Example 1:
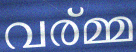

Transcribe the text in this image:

വര്മ്മ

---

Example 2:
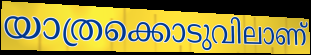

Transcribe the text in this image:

യാത്രക്കൊടുവിലാണ്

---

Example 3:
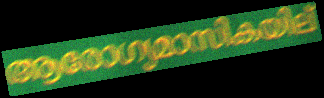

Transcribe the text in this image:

ആരോഗ്യമാസികയില്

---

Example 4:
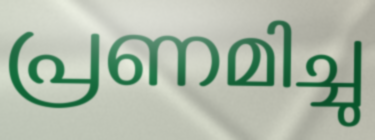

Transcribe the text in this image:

പ്രണമിച്ചു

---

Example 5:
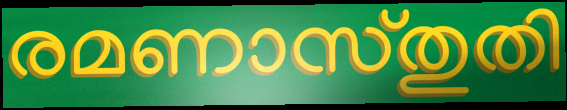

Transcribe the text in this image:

രമണാസ്തുതി